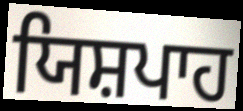
ਯਿਸ਼ਪਾਹ